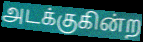
அடக்குகின்ற